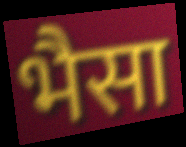
भैसा